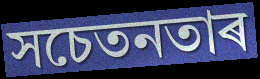
সচেতনতাৰ